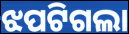
ଝପଟିଗଲା